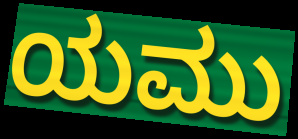
ಯಮು